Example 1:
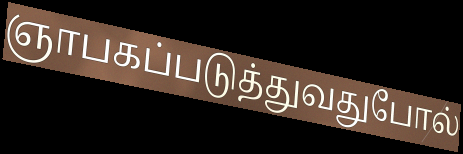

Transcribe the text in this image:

ஞாபகப்படுத்துவதுபோல்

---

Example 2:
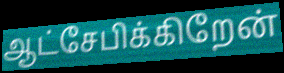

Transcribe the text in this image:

ஆட்சேபிக்கிறேன்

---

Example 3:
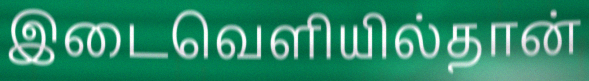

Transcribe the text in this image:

இடைவெளியில்தான்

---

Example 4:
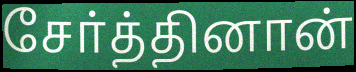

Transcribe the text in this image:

சேர்த்தினான்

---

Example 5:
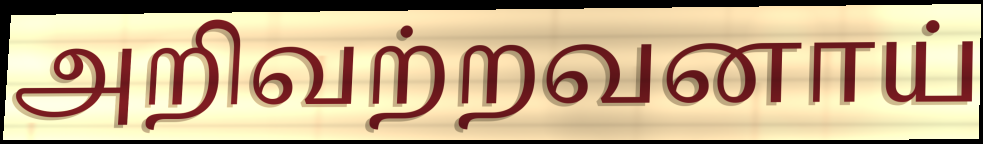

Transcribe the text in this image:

அறிவற்றவனாய்